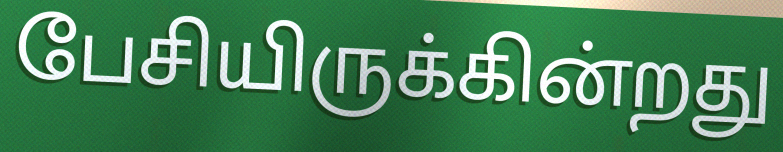
பேசியிருக்கின்றது